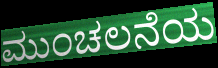
ಮುಂಚಲನೆಯ